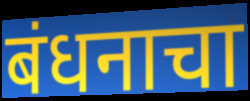
बंधनाचा